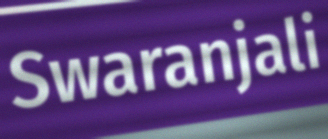
Swaranjali